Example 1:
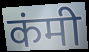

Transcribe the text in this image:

कंमी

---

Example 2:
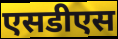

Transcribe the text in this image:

एसडीएस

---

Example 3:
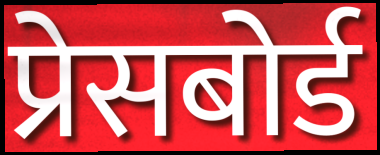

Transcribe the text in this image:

प्रेसबोर्ड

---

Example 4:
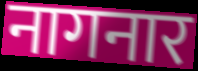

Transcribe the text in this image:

नागनार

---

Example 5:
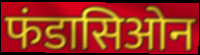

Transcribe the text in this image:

फंडासिओन